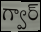
గ్వార్